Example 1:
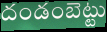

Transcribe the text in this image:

దండంబెట్టు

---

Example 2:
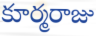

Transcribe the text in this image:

కూర్మరాజు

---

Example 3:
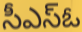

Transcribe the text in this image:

సీఎస్ఓ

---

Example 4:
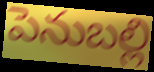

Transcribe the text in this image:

పెనుబల్లి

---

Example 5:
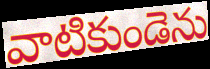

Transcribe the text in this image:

వాటికుండెను